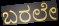
ಬರಲೇ